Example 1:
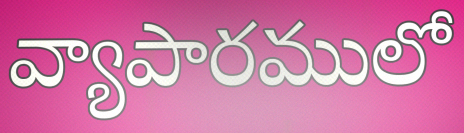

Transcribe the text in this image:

వ్యాపారములో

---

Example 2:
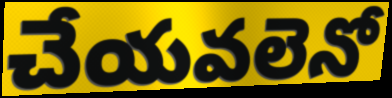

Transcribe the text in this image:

చేయవలెనో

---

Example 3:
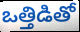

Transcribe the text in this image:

ఒత్తిడితో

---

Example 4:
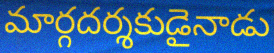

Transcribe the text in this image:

మార్గదర్శకుడైనాడు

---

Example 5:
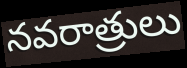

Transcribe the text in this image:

నవరాత్రులు